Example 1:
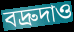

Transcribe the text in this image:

বদ্রুদাও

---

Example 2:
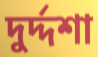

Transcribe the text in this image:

দুর্দ্দশা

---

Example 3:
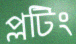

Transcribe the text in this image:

প্লটিং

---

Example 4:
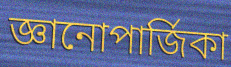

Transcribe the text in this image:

জ্ঞানোপার্জিকা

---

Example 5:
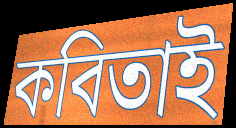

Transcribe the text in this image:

কবিতাই